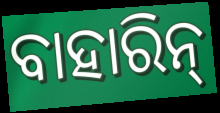
ବାହାରିନ୍